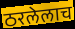
ठरलेलाच